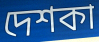
দেশকা